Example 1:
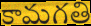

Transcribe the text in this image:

కామగతి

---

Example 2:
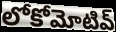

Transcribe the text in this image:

లోకోమోటివ్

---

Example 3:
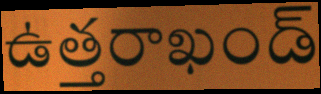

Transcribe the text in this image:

ఉత్తరాఖండ్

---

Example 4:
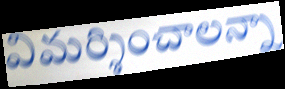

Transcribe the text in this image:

విమర్శించాలన్నా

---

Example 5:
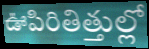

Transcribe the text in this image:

ఊపిరితిత్తుల్లో